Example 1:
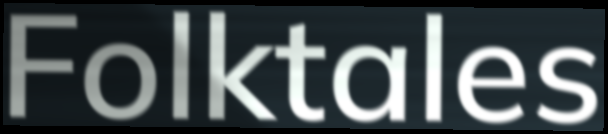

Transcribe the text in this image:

Folktales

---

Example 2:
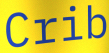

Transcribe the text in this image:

Crib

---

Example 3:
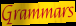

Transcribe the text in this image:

Grammars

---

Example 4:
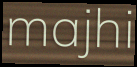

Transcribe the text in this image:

majhi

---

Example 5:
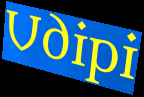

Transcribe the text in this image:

Udipi